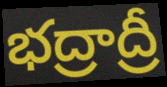
భద్రాద్రీ